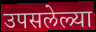
उपसलेल्या